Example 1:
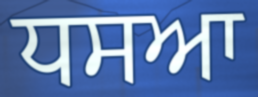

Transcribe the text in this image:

ਧਸਆ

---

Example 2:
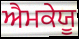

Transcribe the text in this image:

ਐਮਕੇਯੂ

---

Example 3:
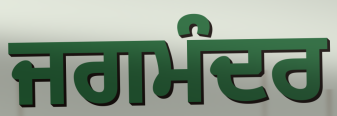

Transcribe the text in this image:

ਜਗਮੰਦਰ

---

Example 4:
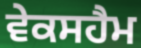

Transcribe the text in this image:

ਵੇਕਸਹੈਮ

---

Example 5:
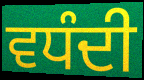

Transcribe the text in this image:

ਵਧੰਦੀ